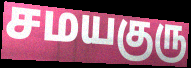
சமயகுரு